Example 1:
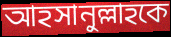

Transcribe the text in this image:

আহসানুল্লাহকে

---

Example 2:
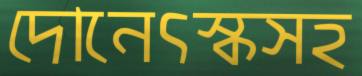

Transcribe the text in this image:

দোনেৎস্কসহ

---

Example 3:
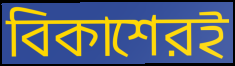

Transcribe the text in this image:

বিকাশেরই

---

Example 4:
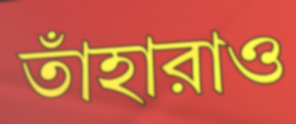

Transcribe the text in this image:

তাঁহারাও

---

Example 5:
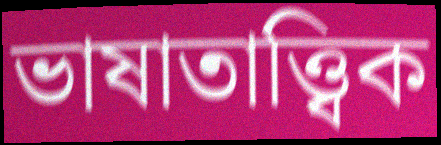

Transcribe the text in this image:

ভাষাতাত্ত্বিক